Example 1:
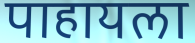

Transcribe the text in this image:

पाहायला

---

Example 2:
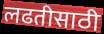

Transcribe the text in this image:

लढतीसाठी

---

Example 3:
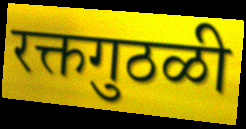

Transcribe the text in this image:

रक्तगुठळी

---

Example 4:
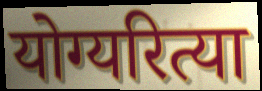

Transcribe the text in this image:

योग्यरित्या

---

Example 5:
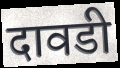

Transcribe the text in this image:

दावडी